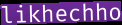
likhechho